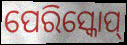
ପେରିସ୍କୋପ୍